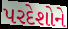
પરદેશોને